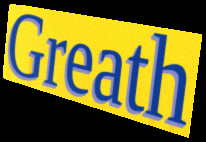
Greath